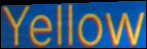
Yellow